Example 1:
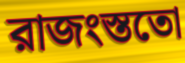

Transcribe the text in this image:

রাজংস্ততো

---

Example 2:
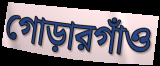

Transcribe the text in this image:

গোড়ারগাঁও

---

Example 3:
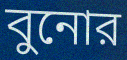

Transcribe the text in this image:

বুনোর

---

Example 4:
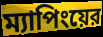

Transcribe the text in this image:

ম্যাপিংয়ের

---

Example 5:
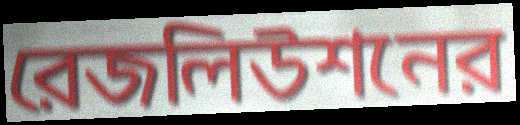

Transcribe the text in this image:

রেজলিউশনের